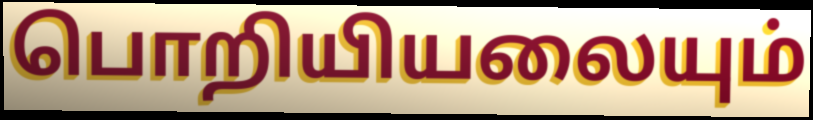
பொறியியலையும்